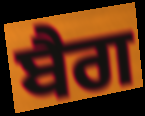
ਬੈਗ